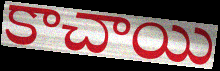
కాచాయి